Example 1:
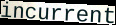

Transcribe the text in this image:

incurrent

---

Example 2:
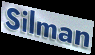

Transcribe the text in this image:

Silman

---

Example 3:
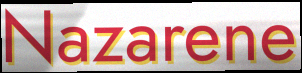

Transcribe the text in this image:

Nazarene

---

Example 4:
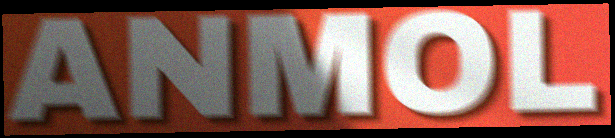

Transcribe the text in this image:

ANMOL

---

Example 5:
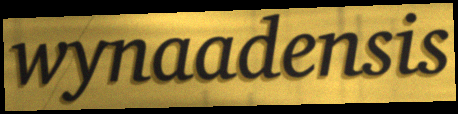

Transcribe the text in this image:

wynaadensis